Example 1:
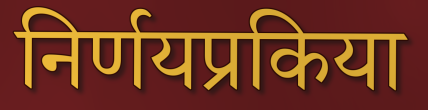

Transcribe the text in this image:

निर्णयप्रकिया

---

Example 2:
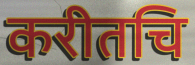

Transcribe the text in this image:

करीतचि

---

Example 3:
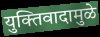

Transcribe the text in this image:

युक्तिवादामुळे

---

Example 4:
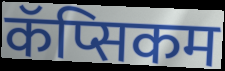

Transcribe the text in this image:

कॅप्सिकम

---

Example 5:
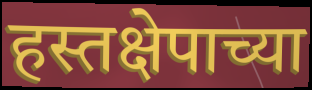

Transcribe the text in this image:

हस्तक्षेपाच्या